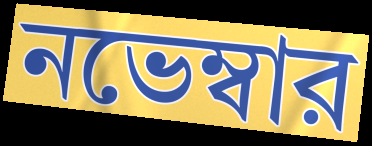
নভেম্বার